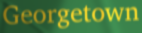
Georgetown